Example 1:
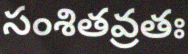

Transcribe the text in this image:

సంశితవ్రతః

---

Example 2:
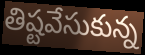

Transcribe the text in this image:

తిష్టవేసుకున్న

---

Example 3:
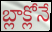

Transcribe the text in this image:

బ్లాక్లోనే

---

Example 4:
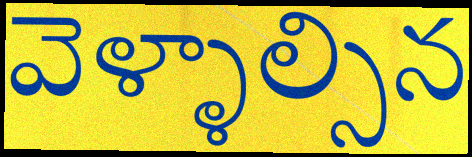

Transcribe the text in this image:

వెళ్ళాల్సిన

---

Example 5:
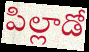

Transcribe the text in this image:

పిల్లాడో